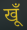
खूँ